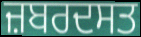
ਜ਼ਬਰਦਸਤ